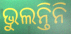
ଭୁଲନ୍ତିନି